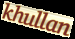
khullan